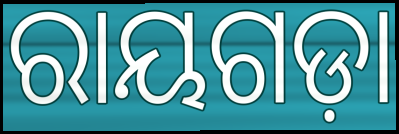
ରାୟଗଡ଼ା